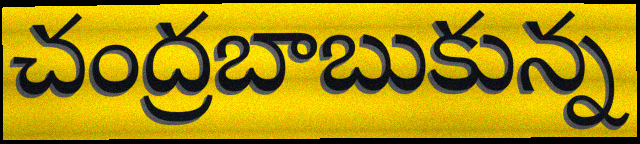
చంద్రబాబుకున్న